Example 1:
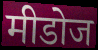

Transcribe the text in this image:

मीडोज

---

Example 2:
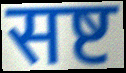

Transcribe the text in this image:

सष्ट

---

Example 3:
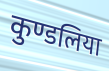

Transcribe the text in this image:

कुण्डलिया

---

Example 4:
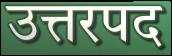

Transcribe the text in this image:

उत्तरपद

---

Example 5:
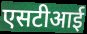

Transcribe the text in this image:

एसटीआई